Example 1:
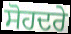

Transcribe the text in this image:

ਸੋਹਦਰੇ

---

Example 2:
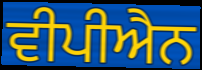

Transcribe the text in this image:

ਵੀਪੀਐਨ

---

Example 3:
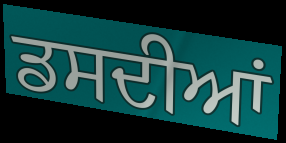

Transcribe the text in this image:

ਡਸਦੀਆਂ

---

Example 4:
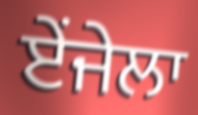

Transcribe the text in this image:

ਏਂਜੇਲਾ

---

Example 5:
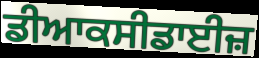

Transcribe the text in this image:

ਡੀਆਕਸੀਡਾਈਜ਼